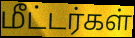
மீட்டர்கள்